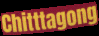
Chitttagong